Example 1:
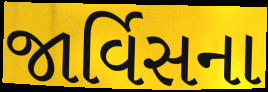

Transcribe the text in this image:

જાર્વિસના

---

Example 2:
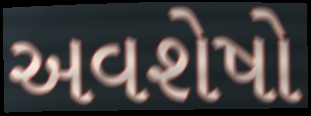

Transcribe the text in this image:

અવશેષો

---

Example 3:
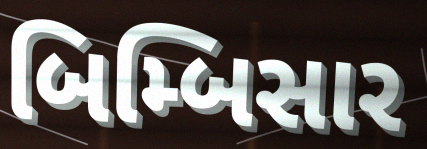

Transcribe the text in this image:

બિમ્બિસાર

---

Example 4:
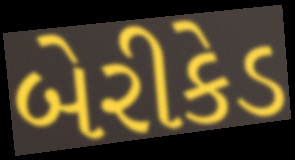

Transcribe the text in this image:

બેરીકેડ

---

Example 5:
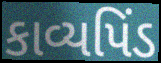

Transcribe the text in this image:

કાવ્યપિંડ